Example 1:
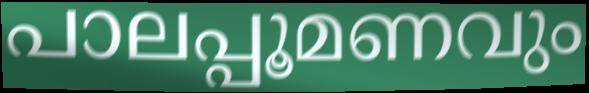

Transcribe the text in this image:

പാലപ്പൂമണവും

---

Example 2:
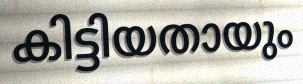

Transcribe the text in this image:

കിട്ടിയതായും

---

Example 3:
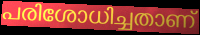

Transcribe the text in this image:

പരിശോധിച്ചതാണ്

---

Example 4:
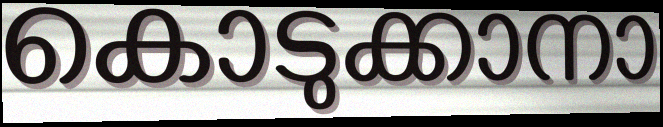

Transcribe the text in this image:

കൊടുക്കാനാ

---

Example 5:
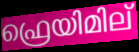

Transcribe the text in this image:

ഫ്രെയിമില്